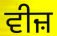
ਵੀਜ਼